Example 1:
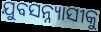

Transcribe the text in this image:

ଯୁବସନ୍ନ୍ୟାସୀକୁ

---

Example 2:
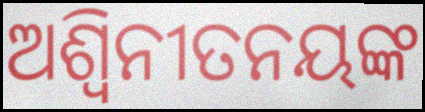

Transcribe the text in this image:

ଅଶ୍ୱିନୀତନୟଙ୍କ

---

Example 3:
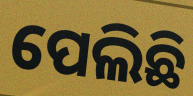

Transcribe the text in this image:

ପେଲିଛି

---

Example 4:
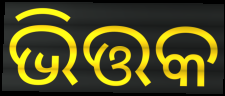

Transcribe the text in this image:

ଭିତ୍ତକ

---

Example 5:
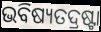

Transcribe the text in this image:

ଭବିଷ୍ୟତଦ୍ରଷ୍ଟା